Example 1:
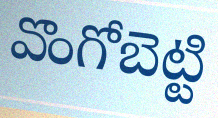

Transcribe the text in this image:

వొంగోబెట్టి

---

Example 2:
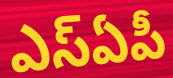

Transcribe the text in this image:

ఎస్ఏపీ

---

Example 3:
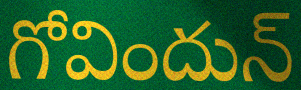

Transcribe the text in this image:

గోవిందున్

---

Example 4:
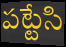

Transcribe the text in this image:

పట్టేసి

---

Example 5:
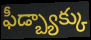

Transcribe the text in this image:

ఫీడ్బ్యాక్కు